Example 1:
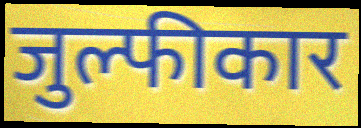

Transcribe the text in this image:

जुल्फीकार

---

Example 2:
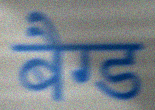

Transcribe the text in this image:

बैग्ड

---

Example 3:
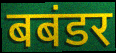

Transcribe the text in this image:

बबंडर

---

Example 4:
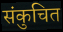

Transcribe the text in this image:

संकुचित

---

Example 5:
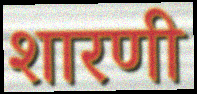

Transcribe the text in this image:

शारणी